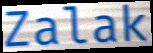
Zalak